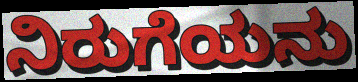
ನಿರುಗೆಯನು